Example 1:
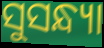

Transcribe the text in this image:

ସୁସନ୍ଧ୍ୟା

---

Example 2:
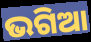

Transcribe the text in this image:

ଭଗିଆ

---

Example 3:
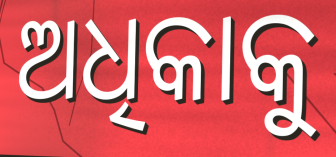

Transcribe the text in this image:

ଅଧିକାକୁ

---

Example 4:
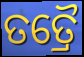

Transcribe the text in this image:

ତତ୍ରୈ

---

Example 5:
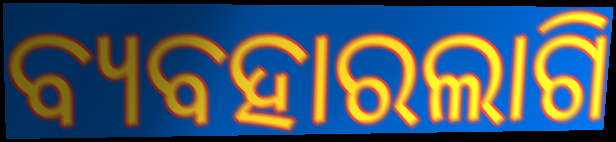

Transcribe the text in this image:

ବ୍ୟବହାରଲାଗି